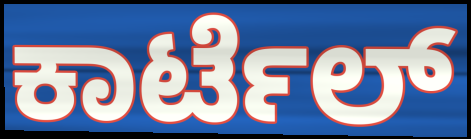
ಕಾರ್ಟೆಲ್